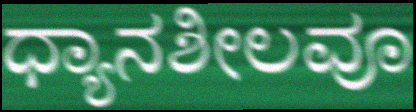
ಧ್ಯಾನಶೀಲವೂ